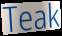
Teak